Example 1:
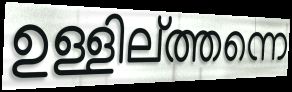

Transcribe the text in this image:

ഉള്ളില്ത്തന്നെ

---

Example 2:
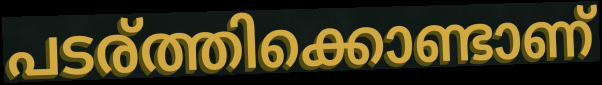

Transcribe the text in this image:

പടര്ത്തിക്കൊണ്ടാണ്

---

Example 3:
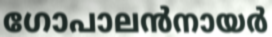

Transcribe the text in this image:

ഗോപാലൻനായർ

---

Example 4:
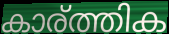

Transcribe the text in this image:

കാര്ത്തിക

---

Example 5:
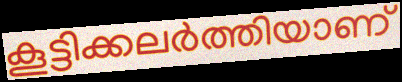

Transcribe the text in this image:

കൂട്ടിക്കലർത്തിയാണ്